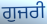
ਗੁਜਰੀ